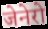
जेनेरो